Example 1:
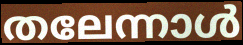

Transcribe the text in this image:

തലേന്നാൾ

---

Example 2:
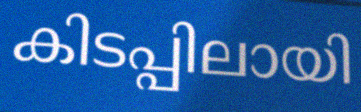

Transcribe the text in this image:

കിടപ്പിലായി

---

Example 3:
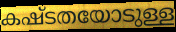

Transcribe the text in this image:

കഷ്ടതയോടുള്ള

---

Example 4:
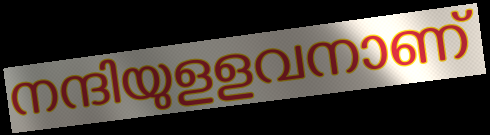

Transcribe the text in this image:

നന്ദിയുളളവനാണ്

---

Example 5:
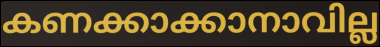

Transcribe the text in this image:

കണക്കാക്കാനാവില്ല